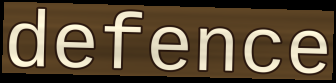
defence